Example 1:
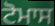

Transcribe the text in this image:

ਟੋਮਾਸ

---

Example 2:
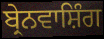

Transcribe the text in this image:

ਬ੍ਰੇਨਵਾਸ਼ਿੰਗ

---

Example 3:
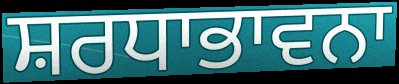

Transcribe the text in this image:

ਸ਼ਰਧਾਭਾਵਨਾ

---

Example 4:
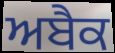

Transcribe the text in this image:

ਅਬੈਕ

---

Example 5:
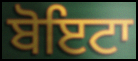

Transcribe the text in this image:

ਬੋਇਟਾ